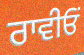
ਰਾਵੀਓਂ